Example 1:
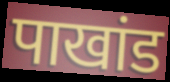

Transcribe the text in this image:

पाखांड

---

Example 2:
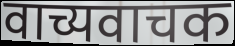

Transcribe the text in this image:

वाच्यवाचक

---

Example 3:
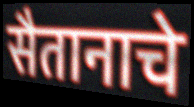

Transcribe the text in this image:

सैतानाचे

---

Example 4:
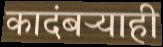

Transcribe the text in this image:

कादंबऱ्याही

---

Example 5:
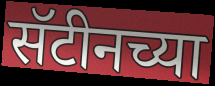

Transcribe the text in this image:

सॅटीनच्या